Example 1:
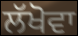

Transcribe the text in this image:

ਲੱਖੋਵਾ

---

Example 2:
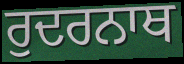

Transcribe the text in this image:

ਰੁਦਰਨਾਥ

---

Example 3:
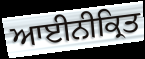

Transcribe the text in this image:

ਆਈਨੀਕ੍ਰਿਤ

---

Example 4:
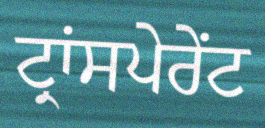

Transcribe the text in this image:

ਟ੍ਰਾਂਸਪੇਰੇਂਟ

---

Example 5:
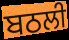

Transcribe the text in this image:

ਬਠਲੀ